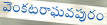
వెంకటరాఘవపురం